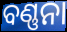
ବଣ୍ଣନା